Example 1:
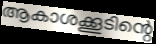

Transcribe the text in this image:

ആകാശക്കൂടിന്റെ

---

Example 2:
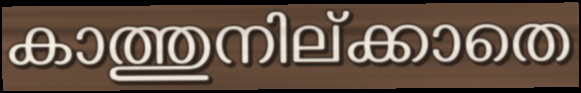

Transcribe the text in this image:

കാത്തുനില്ക്കാതെ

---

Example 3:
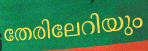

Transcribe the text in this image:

തേരിലേറിയും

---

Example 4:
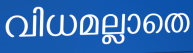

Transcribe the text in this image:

വിധമല്ലാതെ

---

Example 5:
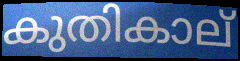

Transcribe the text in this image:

കുതികാല്